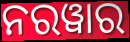
ନରୱାର